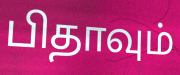
பிதாவும்